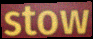
stow